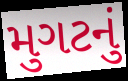
મુગટનું